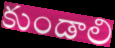
కుండాలి